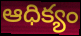
ఆధిక్యం